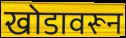
खोडावरून